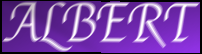
ALBERT